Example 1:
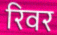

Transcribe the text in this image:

रिवर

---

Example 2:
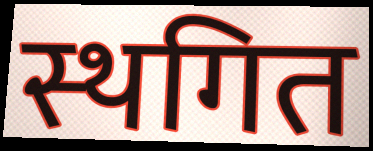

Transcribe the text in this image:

स्थगित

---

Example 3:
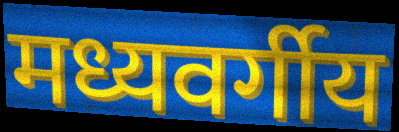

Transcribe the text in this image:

मध्यवर्गीय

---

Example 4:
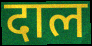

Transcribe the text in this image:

दाल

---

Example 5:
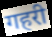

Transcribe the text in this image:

गहरी